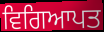
ਵਿਗਿਆਪਤ